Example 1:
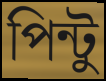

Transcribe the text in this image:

পিন্টু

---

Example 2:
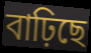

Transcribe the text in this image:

বাঢ়িছে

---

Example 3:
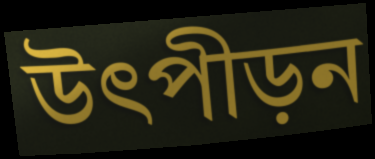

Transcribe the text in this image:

উৎপীড়ন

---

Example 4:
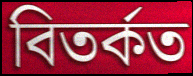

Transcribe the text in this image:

বিতৰ্কত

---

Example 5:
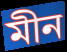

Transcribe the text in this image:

মীন